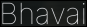
Bhavai